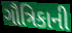
ગૌત્રિકાની